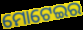
ମୋଟେଇର